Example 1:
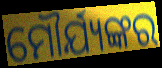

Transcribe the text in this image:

ମୌର୍ଯ୍ୟଙ୍କର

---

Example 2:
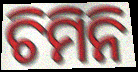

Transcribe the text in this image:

ଚିମିନି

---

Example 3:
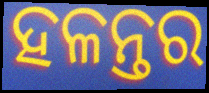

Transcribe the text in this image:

ହଳନ୍ତର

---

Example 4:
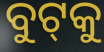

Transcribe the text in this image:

ବୁଟ୍‌କୁ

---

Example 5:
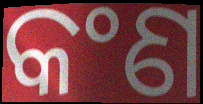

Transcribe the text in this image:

କଂଣ